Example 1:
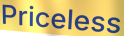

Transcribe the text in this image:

Priceless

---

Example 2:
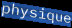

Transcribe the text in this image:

physique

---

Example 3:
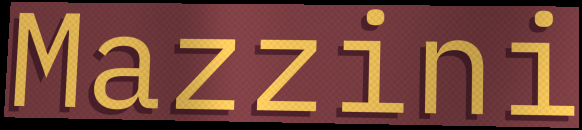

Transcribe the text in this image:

Mazzini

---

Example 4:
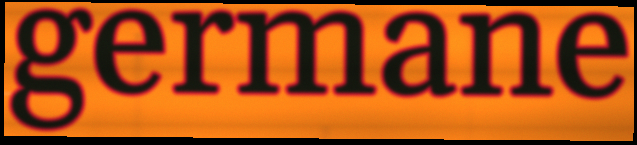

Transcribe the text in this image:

germane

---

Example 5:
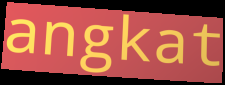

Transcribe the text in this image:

angkat